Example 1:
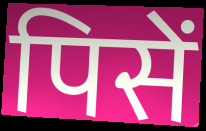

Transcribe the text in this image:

पिसें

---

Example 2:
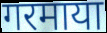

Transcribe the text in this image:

गरमाया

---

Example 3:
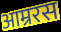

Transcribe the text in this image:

आम्ररस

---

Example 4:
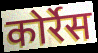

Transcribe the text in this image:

कोर्रेस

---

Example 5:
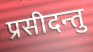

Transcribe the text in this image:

प्रसीदन्तु